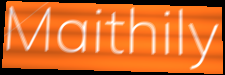
Maithily